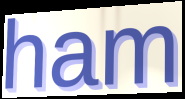
ham